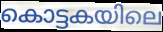
കൊട്ടകയിലെ